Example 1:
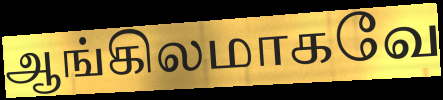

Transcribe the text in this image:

ஆங்கிலமாகவே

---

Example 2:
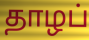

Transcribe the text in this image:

தாழப்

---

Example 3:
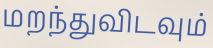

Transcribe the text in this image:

மறந்துவிடவும்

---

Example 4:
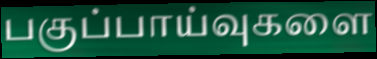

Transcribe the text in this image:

பகுப்பாய்வுகளை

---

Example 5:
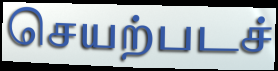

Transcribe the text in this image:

செயற்படச்